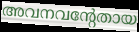
അവനവന്റേതായ